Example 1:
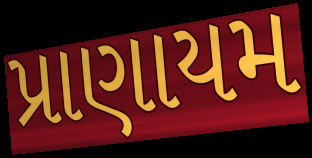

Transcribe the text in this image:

પ્રાણાયમ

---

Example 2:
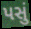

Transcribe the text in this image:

પસું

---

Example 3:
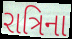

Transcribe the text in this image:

રાત્રિના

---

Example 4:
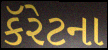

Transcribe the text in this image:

કૅરેટના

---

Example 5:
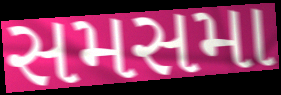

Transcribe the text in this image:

સમસમા